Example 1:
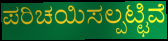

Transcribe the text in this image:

ಪರಿಚಯಿಸಲ್ಪಟ್ಟಿವೆ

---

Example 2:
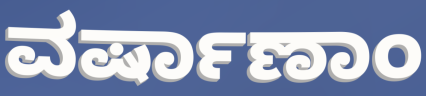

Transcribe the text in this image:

ವರ್ಷಾಣಾಂ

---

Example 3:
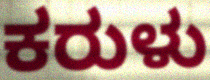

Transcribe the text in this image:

ಕರುಳು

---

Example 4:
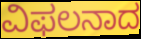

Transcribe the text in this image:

ವಿಫಲನಾದ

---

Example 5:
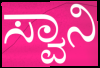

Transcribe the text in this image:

ಸ್ವಾನಿ